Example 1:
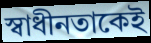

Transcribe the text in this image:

স্বাধীনতাকেই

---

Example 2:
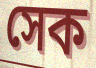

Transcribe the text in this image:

সেক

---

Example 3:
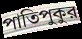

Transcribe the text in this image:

পাতিপুকুর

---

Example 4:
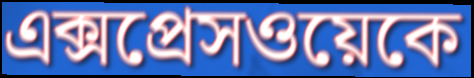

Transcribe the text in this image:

এক্সপ্রেসওয়েকে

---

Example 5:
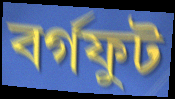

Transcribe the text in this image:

বর্গফুট